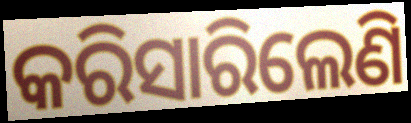
କରିସାରିଲେଣି